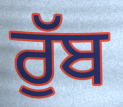
ਰੁੱਬ